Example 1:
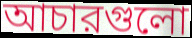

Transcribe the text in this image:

আচারগুলো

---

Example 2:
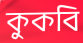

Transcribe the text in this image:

কুকবি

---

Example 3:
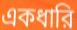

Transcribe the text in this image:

একধারি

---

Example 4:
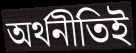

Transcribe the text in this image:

অর্থনীতিই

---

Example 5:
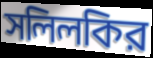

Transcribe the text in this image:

সলিলকির